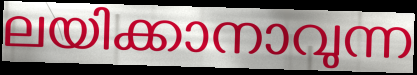
ലയിക്കാനാവുന്ന